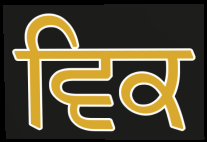
ਵਿਕ